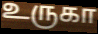
உருகா